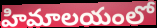
హిమాలయంలో